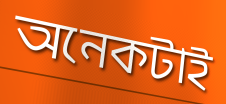
অনেকটাই